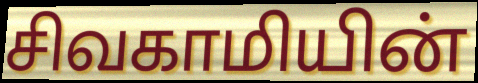
சிவகாமியின்